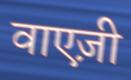
वाएज़ी